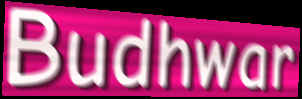
Budhwar